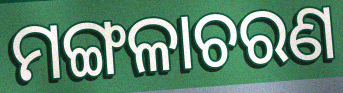
ମଙ୍ଗଳାଚରଣ